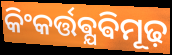
କିଂକର୍ତ୍ତଵ୍ଯଵିମୂଢ଼